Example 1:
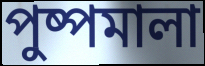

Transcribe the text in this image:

পুষ্পমালা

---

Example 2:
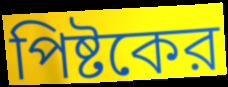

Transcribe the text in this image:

পিষ্টকের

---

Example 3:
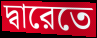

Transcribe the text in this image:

দ্বারেতে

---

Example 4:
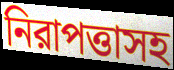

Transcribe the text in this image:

নিরাপত্তাসহ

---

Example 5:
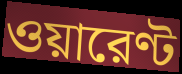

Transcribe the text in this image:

ওয়ারেণ্ট